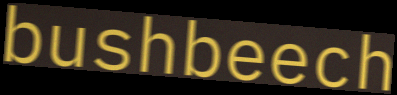
bushbeech